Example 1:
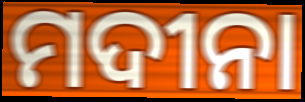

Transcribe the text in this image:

ମଦୀନା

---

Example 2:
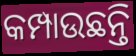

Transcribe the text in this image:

କମ୍ପାଉଛନ୍ତି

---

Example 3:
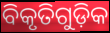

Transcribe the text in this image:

ବିକୃତିଗୁଡ଼ିକ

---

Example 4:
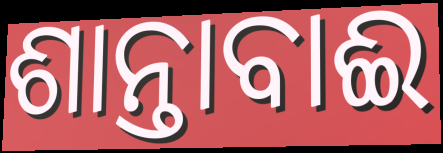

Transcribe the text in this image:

ଶାନ୍ତାବାଈ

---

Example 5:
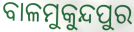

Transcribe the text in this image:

ବାଳମୁକୁନ୍ଦପୁର